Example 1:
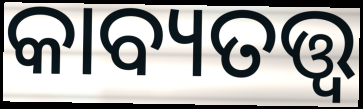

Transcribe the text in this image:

କାବ୍ୟତତ୍ତ୍ୱ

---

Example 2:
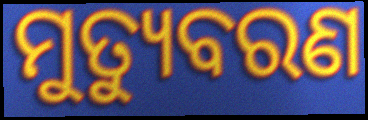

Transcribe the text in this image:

ମୁତ୍ୟୁବରଣ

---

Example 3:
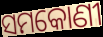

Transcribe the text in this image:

ସମକୋଣୀ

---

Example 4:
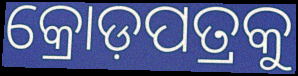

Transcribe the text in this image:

କ୍ରୋଡ଼ପତ୍ରକୁ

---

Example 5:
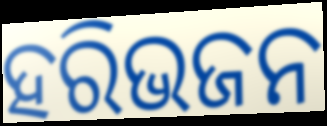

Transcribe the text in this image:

ହରିଭଜନ